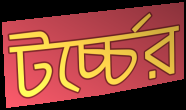
টর্চ্চের